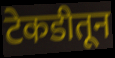
टेकडीतून